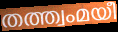
തത്ത്വംമയീ